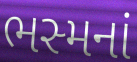
ભસ્મનાં